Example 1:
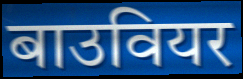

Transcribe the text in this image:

बाउवियर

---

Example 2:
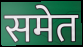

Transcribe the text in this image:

समेत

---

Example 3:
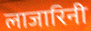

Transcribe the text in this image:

लाजारिनी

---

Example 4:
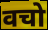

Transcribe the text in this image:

वचो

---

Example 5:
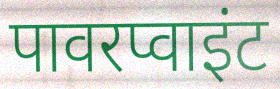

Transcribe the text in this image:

पावरप्वाइंट